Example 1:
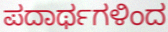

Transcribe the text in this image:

ಪದಾರ್ಥಗಳಿಂದ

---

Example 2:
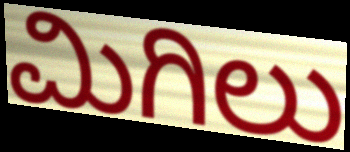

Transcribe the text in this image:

ಮಿಗಿಲು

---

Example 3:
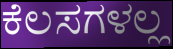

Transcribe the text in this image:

ಕೆಲಸಗಳಲ್ಲ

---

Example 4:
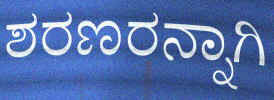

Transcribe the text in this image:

ಶರಣರನ್ನಾಗಿ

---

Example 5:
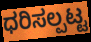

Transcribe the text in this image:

ಧರಿಸಲ್ಪಟ್ಟ